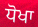
ਧੋਖਾ